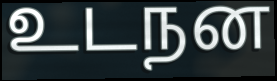
உடநன